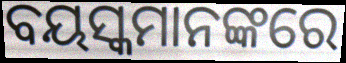
ବୟସ୍କମାନଙ୍କରେ